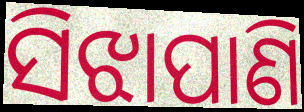
ସିଝାପାଣି